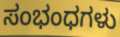
ಸಂಭಂಧಗಳು